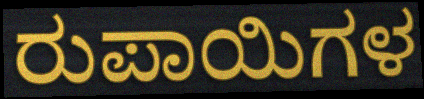
ರುಪಾಯಿಗಳ